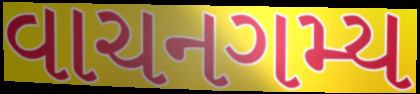
વાચનગમ્ય